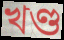
খণ্ড